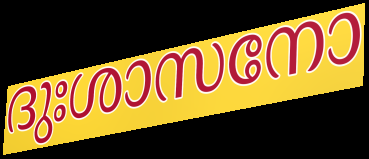
ദുഃശാസനോ